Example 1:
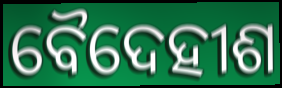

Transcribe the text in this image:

ବୈଦେହୀଶ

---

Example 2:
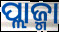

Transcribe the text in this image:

ପ୍ଲାଜ୍ମା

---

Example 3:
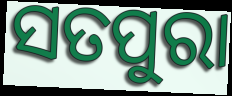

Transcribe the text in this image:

ସତପୁରା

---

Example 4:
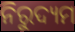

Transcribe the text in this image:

ନିରୁଦ୍ୟମ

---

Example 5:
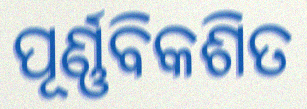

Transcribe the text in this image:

ପୂର୍ଣ୍ଣବିକଶିତ